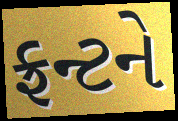
ફ્રન્ટને